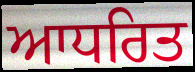
ਆਧਰਿਤ